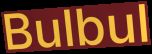
Bulbul